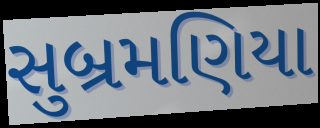
સુબ્રમણિયા